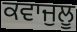
ਕਵਾਜੁਲੂ